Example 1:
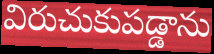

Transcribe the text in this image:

విరుచుకుపడ్డాను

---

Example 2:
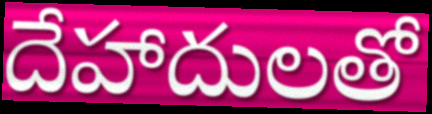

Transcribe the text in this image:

దేహాదులతో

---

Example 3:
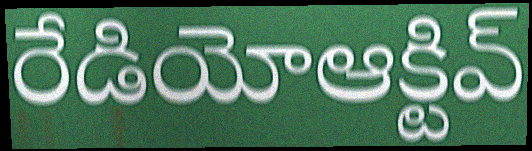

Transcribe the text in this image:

రేడియోఆక్టివ్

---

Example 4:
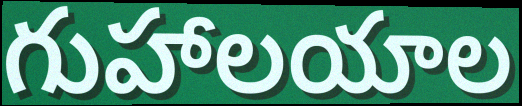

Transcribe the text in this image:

గుహాలయాల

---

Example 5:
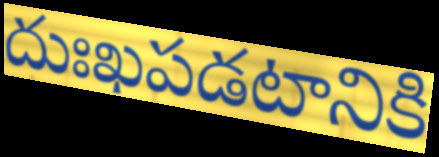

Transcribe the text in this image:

దుఃఖపడటానికి